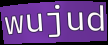
wujud